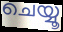
ചെയ്യൂ